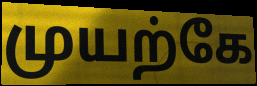
முயற்கே